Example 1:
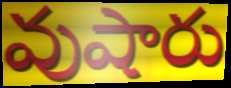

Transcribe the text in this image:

వుషారు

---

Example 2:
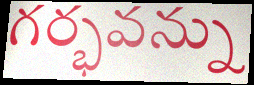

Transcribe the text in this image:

గర్భవన్ను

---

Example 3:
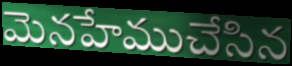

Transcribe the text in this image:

మెనహేముచేసిన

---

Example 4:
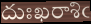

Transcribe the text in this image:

దుఃఖరాశిఁ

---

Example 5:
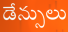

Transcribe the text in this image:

డేన్సులు